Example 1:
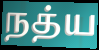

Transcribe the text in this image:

நத்ய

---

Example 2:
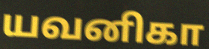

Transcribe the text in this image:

யவனிகா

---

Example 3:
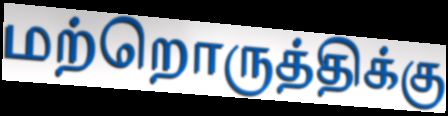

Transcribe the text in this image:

மற்றொருத்திக்கு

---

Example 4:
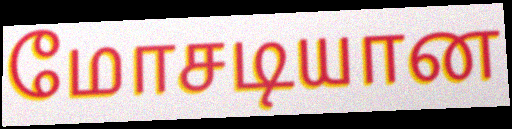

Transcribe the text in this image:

மோசடியான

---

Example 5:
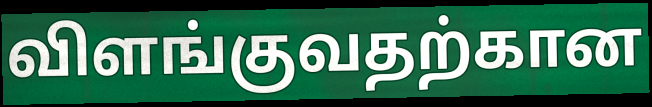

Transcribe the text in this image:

விளங்குவதற்கான